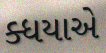
ક્ધયાએ